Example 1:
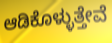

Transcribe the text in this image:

ಆಡಿಕೊಳ್ಳುತ್ತೇವೆ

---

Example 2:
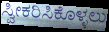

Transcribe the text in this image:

ಸ್ವೀಕರಿಸಿಕೊಳ್ಳಲು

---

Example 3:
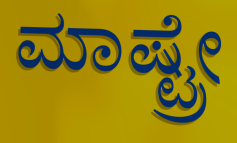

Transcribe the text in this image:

ಮಾಷ್ಟ್ರೇ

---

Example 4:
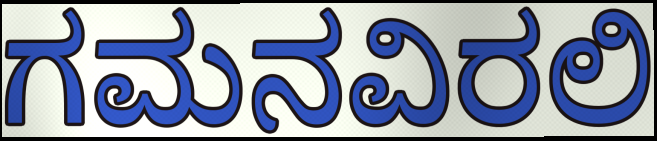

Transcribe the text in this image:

ಗಮನವಿರಲಿ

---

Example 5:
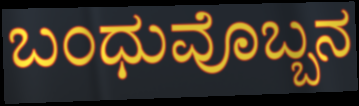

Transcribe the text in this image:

ಬಂಧುವೊಬ್ಬನ